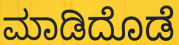
ಮಾಡಿದೊಡೆ